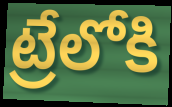
ట్రేలోకి